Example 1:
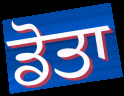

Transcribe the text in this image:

ਡੋਤਾ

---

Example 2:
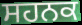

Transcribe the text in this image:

ਸਹਨਕ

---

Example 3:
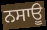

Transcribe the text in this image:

ਨਸਾਊ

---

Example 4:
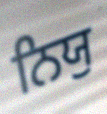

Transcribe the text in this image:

ਨਿਯੁ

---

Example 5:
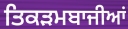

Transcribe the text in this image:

ਤਿਕੜਮਬਾਜੀਆਂ